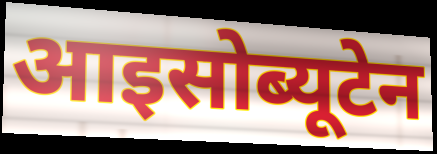
आइसोब्यूटेन